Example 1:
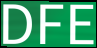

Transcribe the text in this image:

DFE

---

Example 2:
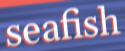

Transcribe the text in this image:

seafish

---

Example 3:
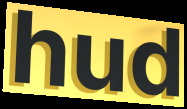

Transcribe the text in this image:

hud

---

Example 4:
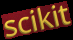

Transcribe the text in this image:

scikit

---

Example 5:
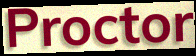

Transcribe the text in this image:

Proctor